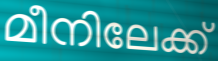
മീനിലേക്ക്